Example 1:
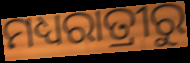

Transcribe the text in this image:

ମଧ୍ୟରାତ୍ରୀରୁ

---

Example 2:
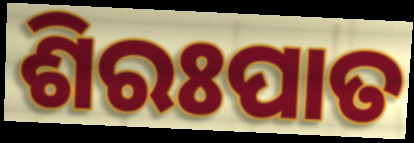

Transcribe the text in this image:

ଶିରଃପାତ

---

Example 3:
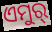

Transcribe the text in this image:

ଏମୁର୍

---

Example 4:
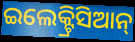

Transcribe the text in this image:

ଇଲେକ୍ଟ୍ରିସିଆନ୍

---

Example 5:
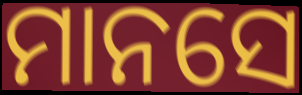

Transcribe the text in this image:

ମାନସେ